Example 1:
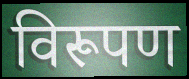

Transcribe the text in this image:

विरूपण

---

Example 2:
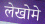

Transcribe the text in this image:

लेखोमे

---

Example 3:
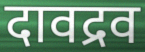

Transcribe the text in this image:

दावद्रव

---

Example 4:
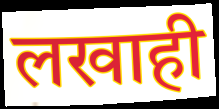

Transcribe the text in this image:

लखाही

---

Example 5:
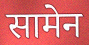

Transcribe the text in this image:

सामेन